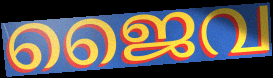
ജൈവ